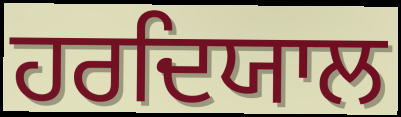
ਹਰਦਿਯਾਲ